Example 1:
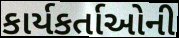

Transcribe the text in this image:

કાર્યકર્તાઓની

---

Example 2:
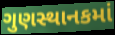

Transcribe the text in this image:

ગુણસ્થાનકમાં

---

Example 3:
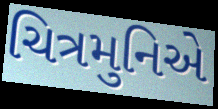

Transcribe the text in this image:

ચિત્રમુનિએ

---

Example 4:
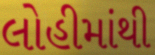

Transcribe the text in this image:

લોહીમાંથી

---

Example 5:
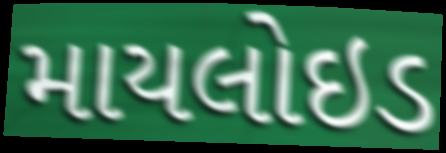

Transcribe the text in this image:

માયલોઇડ